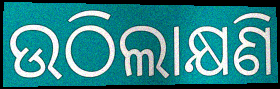
ଉଠିଲାକ୍ଷଣି